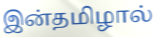
இன்தமிழால்